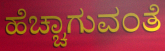
ಹೆಚ್ಚಾಗುವಂತೆ